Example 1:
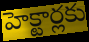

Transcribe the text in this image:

హెక్టార్లకు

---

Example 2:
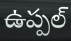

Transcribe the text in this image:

ఉప్పల్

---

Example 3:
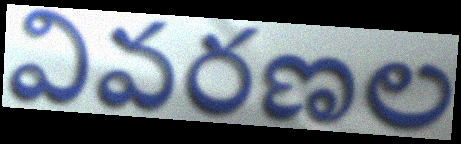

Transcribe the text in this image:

వివరణల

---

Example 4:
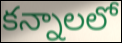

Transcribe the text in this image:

కన్నాలలో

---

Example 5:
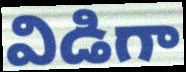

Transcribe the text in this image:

విడిగా